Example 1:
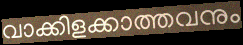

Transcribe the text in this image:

വാക്കിളക്കാത്തവനും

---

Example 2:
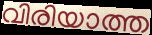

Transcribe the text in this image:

വിരിയാത്ത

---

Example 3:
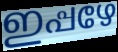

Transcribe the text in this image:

ഇപ്പഴേ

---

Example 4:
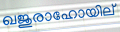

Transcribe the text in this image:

ഖജുരാഹോയില്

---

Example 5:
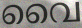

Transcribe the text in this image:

വൈ